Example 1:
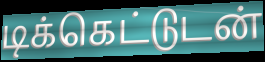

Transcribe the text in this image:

டிக்கெட்டுடன்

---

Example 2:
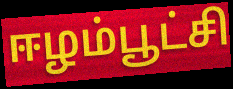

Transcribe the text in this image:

ஈழம்பூட்சி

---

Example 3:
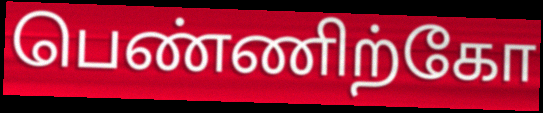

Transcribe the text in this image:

பெண்ணிற்கோ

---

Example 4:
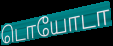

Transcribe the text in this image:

டொயோடா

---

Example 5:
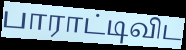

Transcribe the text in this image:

பாராட்டிவிட